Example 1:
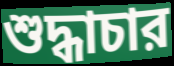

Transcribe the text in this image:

শুদ্ধাচার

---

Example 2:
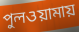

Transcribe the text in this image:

পুলওয়ামায়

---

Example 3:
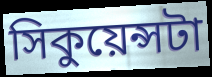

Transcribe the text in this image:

সিকুয়েন্সটা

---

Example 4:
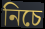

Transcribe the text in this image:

নিচে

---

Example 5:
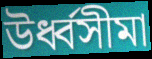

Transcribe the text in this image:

উর্ধ্বসীমা